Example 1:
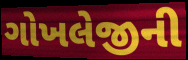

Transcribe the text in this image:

ગોખલેજીની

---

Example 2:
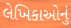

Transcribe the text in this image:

લેખિકાઓનું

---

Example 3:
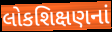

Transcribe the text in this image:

લોકશિક્ષણનાં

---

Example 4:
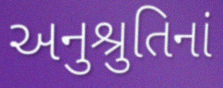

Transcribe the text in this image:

અનુશ્રુતિનાં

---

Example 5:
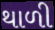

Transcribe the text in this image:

થાળી